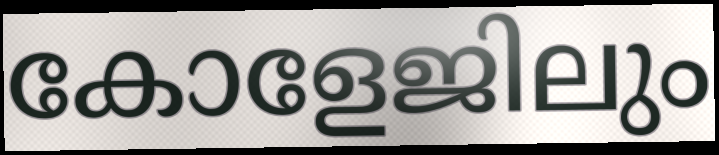
കോളേജിലും